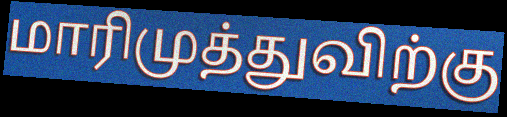
மாரிமுத்துவிற்கு